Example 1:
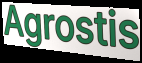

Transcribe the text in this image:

Agrostis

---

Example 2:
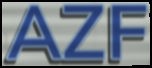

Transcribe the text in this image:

AZF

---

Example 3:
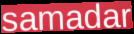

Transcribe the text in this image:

samadar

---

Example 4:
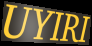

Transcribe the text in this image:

UYIRI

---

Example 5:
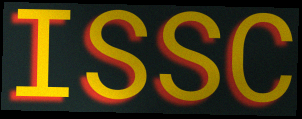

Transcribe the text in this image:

ISSC